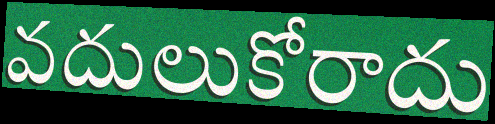
వదులుకోరాదు